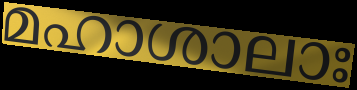
മഹാശാലാഃ